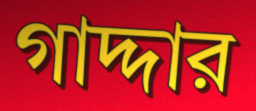
গাদ্দার